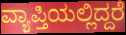
ವ್ಯಾಪ್ತಿಯಲ್ಲಿದ್ದರೆ